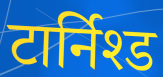
टार्निश्ड